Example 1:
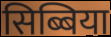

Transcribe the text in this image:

सिब्बिया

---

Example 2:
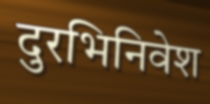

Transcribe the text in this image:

दुरभिनिवेश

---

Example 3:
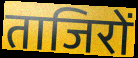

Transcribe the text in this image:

ताजिरों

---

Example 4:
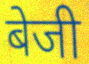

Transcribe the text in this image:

बेजी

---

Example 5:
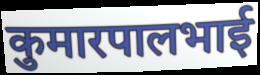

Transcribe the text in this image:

कुमारपालभाई